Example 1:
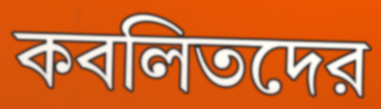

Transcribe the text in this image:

কবলিতদের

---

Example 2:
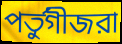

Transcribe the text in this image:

পর্তুগীজরা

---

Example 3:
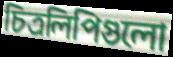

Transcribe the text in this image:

চিত্রলিপিগুলো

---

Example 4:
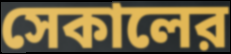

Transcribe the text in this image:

সেকালের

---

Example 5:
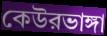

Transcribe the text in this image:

কেউরভাঙ্গা